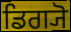
ਡਿਗ੍ਯੋ